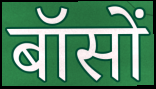
बॉसों